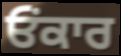
ਓਂਕਾਰ